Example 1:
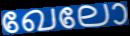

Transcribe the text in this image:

ഖേലോ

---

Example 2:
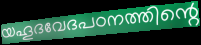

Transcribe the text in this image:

യഹൂദവേദപഠനത്തിന്റെ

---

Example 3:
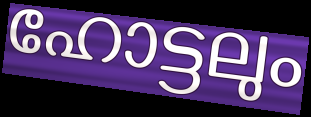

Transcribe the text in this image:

ഹോട്ടലും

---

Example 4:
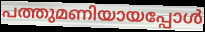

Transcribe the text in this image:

പത്തുമണിയായപ്പോൾ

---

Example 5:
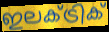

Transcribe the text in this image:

ഇലക്ട്രിക്